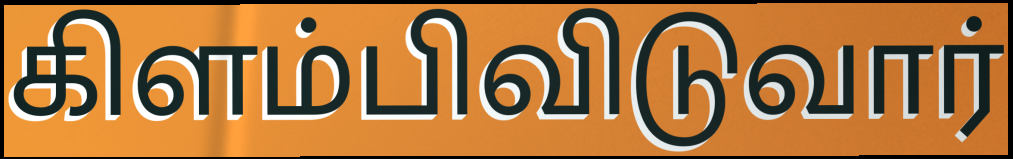
கிளம்பிவிடுவார்